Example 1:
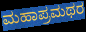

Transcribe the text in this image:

ಮಹಾಪ್ರಮಥರ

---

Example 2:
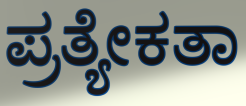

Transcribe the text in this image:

ಪ್ರತ್ಯೇಕತಾ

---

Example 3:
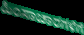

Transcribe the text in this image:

ಹಿಂಸಾಚಾರಗಳಿಗೆ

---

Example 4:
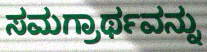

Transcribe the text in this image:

ಸಮಗ್ರಾರ್ಥವನ್ನು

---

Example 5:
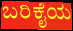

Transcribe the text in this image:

ಬರಿಕೈಯ